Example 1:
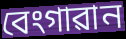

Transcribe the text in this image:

বেংগাৱান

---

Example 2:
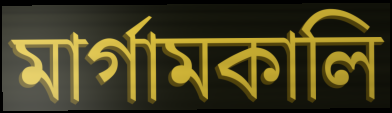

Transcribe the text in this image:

মাৰ্গামকালি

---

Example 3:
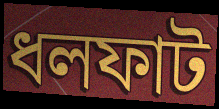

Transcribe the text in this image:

ধলফাট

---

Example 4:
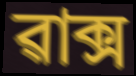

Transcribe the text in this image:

ৱাক্স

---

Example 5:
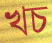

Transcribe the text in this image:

খচ